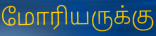
மோரியருக்கு